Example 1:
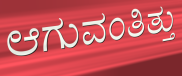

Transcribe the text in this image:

ಆಗುವಂತಿತ್ತು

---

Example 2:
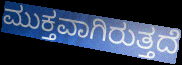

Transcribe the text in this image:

ಮುಕ್ತವಾಗಿರುತ್ತದೆ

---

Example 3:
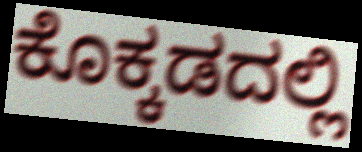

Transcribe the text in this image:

ಕೊಕ್ಕಡದಲ್ಲಿ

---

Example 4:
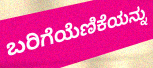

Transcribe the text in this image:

ಬರಿಗೆಯೆಣಿಕೆಯನ್ನು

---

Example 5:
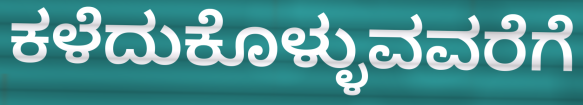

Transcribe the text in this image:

ಕಳೆದುಕೊಳ್ಳುವವರೆಗೆ